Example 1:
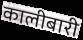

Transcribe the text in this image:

कालीबारी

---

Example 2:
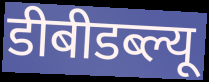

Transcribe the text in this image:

डीबीडब्ल्यू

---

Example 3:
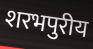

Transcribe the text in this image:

शरभपुरीय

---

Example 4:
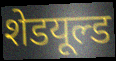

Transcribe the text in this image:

शेडयूल्ड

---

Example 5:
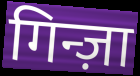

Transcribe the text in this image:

गिन्ज़ा